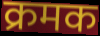
क्रमक